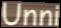
Unni